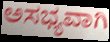
ಅಸಭ್ಯವಾಗಿ